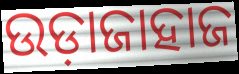
ଉଡ଼ାଜାହାଜ